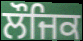
ਲੌਜਿਕ